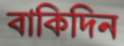
বাকিদিন